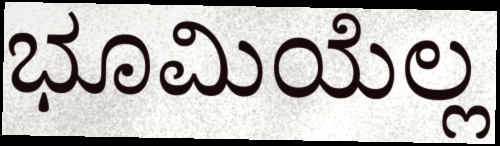
ಭೂಮಿಯೆಲ್ಲ